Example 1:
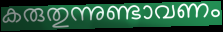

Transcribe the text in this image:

കരുതുന്നുണ്ടാവണം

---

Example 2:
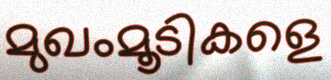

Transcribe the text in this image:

മുഖംമൂടികളെ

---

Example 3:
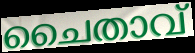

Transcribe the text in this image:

ചൈതാവ്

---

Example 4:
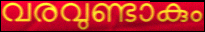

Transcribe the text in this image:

വരവുണ്ടാകും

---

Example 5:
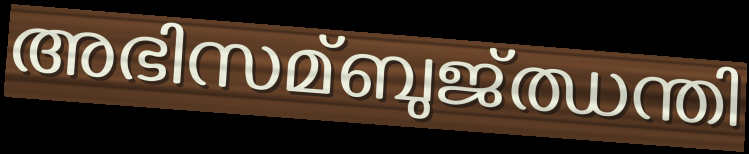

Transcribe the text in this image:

അഭിസമ്ബുജ്ഝന്തി